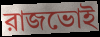
রাজভোই